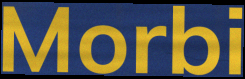
Morbi